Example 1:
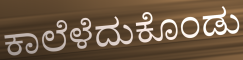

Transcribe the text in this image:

ಕಾಲೆಳೆದುಕೊಂಡು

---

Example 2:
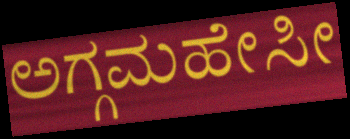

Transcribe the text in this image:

ಅಗ್ಗಮಹೇಸೀ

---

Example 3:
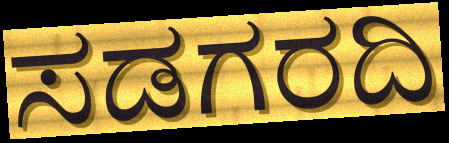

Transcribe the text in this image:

ಸಡಗರದಿ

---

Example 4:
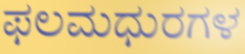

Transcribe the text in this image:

ಫಲಮಧುರಗಳ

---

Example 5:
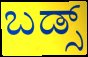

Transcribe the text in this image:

ಬಡ್ಸ್